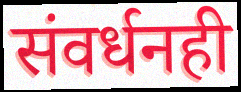
संवर्धनही